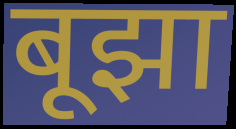
बूझा